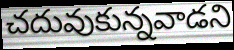
చదువుకున్నవాడని